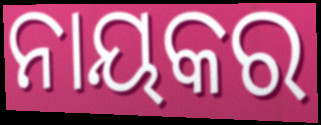
ନାୟକର